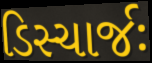
ડિસ્ચાર્જઃ